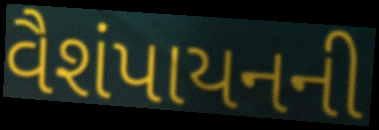
વૈશંપાયનની